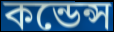
কন্ডেন্স